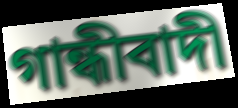
গান্ধীবাদী